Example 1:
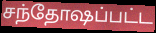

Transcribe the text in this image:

சந்தோஷப்பட்ட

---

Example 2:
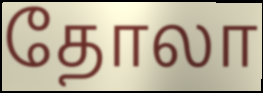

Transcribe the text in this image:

தோலா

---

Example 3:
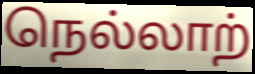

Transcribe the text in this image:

நெல்லாற்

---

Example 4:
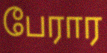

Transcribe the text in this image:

பேரார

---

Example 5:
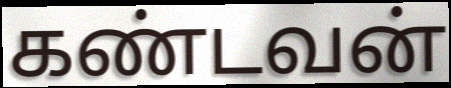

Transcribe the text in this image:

கண்டவன்